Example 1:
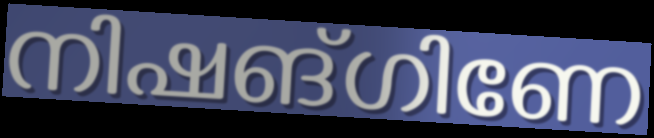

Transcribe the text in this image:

നിഷങ്ഗിണേ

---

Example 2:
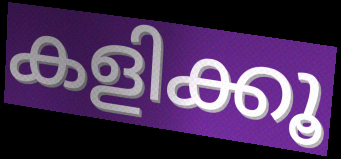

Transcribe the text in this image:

കളിക്കൂ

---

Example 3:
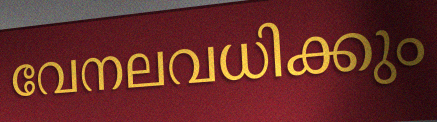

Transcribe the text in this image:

വേനലവധിക്കും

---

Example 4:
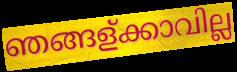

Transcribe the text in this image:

ഞങ്ങള്ക്കാവില്ല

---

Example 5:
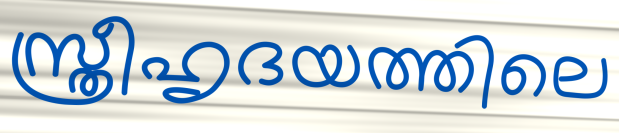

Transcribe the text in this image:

സ്ത്രീഹൃദയത്തിലെ